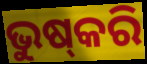
ଭୁଷ୍‌କରି